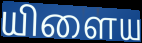
யிளைய